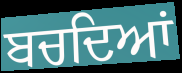
ਬਚਦਿਆਂ